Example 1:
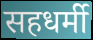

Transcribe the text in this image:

सहधर्मी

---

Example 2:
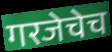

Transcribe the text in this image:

गरजेचेच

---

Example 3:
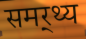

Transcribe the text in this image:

समर्थ्य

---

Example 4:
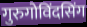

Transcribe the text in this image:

गुरुगोविंदसिंग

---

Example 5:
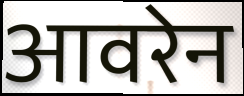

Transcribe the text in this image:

आवरेन